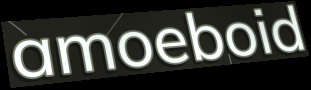
amoeboid